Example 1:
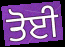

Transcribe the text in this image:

ਤੋਈ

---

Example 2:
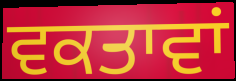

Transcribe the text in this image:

ਵਕਤਾਵਾਂ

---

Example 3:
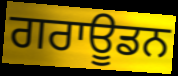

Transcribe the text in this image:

ਗਰਾਊਡਨ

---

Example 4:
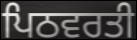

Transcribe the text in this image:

ਪਿਠਵਰਤੀ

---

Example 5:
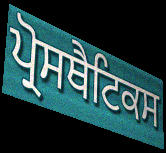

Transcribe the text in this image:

ਪ੍ਰੋਸਥੈਟਿਕਸ